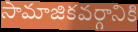
సామాజికవర్గానికి